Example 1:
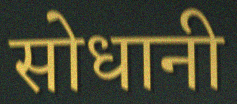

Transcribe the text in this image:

सोधानी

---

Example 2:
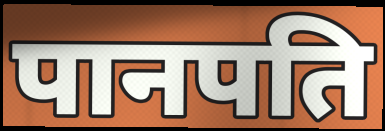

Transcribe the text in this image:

पानपति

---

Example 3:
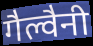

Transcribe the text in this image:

गैल्वैनी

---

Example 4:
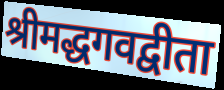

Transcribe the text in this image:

श्रीमद्धगवद्वीता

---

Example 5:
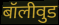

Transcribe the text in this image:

बॉलीवुड